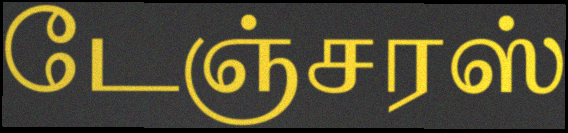
டேஞ்சரஸ்